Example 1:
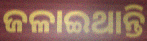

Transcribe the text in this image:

ଜଳାଇଥାନ୍ତି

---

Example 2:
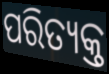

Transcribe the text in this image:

ପରିତ୍ୟକ୍ତ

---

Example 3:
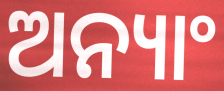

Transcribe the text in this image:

ଅନ୍ୟାଂ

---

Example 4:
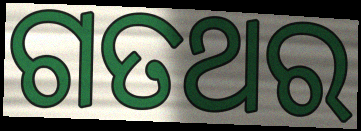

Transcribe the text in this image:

ଗତଥର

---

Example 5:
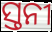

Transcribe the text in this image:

ସ୍ତନୀ